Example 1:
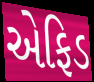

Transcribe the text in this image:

એફિડ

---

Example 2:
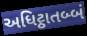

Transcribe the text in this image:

અધિટ્ઠાતબ્બં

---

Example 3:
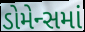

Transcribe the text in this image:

ડોમેન્સમાં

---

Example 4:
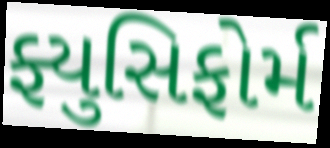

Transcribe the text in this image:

ફ્યુસિફોર્મ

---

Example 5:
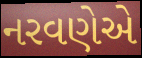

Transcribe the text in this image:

નરવણેએ